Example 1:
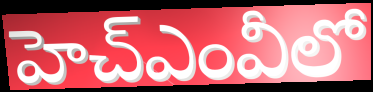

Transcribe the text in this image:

హెచ్ఎంవీలో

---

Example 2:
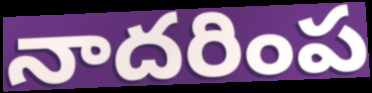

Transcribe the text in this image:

నాదరింప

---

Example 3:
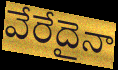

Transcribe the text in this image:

వేరేదైనా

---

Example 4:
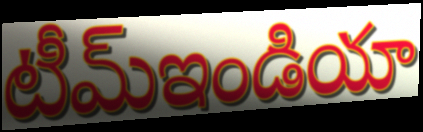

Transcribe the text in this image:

టీమ్ఇండియా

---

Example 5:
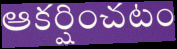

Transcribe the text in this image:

ఆకర్షించటం